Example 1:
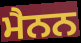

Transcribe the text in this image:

ਮੈਨਨ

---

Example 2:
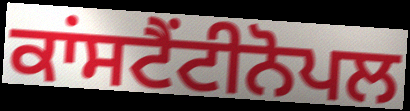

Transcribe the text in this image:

ਕਾਂਸਟੈਂਟੀਨੋਪਲ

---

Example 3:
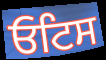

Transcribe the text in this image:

ਓਟਿਸ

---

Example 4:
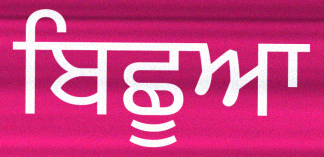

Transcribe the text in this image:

ਬਿਛੂਆ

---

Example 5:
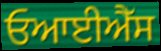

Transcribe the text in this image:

ਓਆਈਐੱਸ